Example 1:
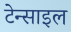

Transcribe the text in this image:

टेन्साइल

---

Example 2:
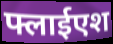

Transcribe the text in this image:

फ्लाईएश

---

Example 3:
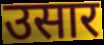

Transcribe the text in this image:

उसार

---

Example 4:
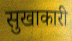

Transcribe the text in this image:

सुखाकारी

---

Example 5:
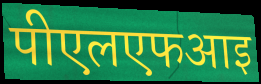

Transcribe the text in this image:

पीएलएफआइ